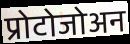
प्रोटोजोअन